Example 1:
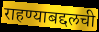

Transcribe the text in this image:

राहण्याबद्दलची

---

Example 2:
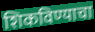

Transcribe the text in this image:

शिकविण्याचा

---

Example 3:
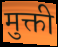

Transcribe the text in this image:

मुक्ती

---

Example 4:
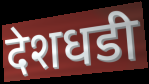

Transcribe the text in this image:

देशधडी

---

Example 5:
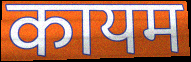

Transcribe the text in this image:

कायम